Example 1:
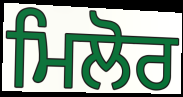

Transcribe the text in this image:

ਮਿਲੋਰ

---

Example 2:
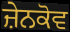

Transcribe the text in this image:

ਜ਼ੇਨਕੋਵ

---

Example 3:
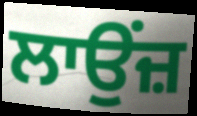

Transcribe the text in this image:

ਲਾਉਂਜ਼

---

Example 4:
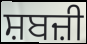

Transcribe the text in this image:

ਸ਼ਬਜ਼ੀ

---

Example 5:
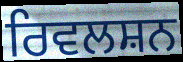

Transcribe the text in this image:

ਰਿਵਲਸ਼ਨ